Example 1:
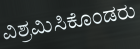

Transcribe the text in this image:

ವಿಶ್ರಮಿಸಿಕೊಂಡರು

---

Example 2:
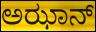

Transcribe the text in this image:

ಅಝಾನ್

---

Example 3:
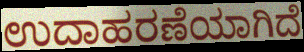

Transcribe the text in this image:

ಉದಾಹರಣೆಯಾಗಿದೆ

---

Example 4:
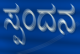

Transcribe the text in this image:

ಸ್ಪಂದನ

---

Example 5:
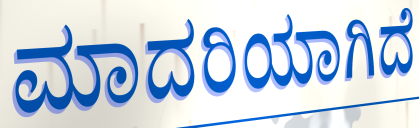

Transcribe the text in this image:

ಮಾದರಿಯಾಗಿದೆ